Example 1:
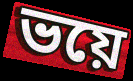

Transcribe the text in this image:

ভয়ে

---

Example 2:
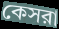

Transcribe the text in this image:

কেসরা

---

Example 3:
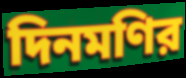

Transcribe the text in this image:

দিনমণির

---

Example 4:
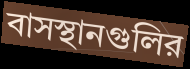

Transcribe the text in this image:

বাসস্থানগুলির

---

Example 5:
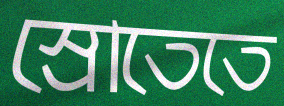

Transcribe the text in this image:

স্রোতেতে